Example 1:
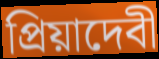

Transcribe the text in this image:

প্রিয়াদেবী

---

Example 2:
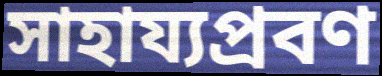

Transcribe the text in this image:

সাহায্যপ্রবণ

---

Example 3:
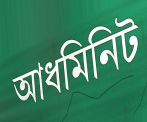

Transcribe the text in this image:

আধমিনিট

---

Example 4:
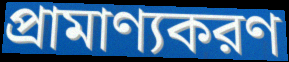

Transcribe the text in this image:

প্রামাণ্যকরণ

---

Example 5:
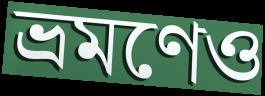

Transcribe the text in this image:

ভ্রমণেও